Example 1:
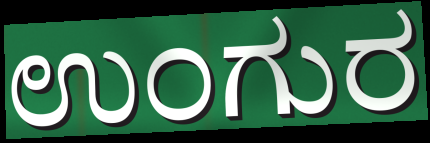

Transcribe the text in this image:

ಉಂಗುರ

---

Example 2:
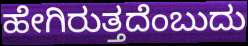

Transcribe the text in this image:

ಹೇಗಿರುತ್ತದೆಂಬುದು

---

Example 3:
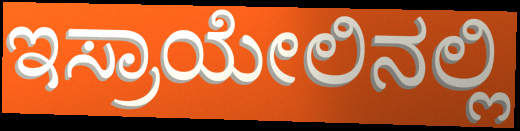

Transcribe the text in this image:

ಇಸ್ರಾಯೇಲಿನಲ್ಲಿ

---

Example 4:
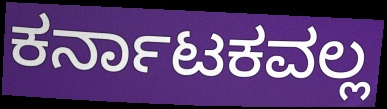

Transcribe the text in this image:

ಕರ್ನಾಟಕವಲ್ಲ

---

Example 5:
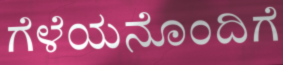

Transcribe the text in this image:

ಗೆಳೆಯನೊಂದಿಗೆ